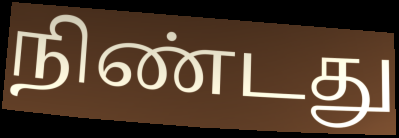
நிண்டது